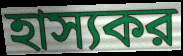
হাস্যকর